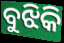
ବୁଝିକି